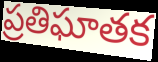
ప్రతిఘాతక